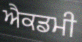
ਐਕਡਮੀ